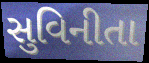
સુવિનીતા